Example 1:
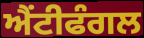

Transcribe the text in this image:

ਐਂਟੀਫੰਗਲ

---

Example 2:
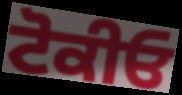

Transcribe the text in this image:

ਟੋਕੀਓ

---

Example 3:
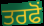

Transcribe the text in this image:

ਤਰਫੋਂ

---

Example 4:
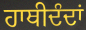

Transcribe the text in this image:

ਹਾਥੀਦੰਦਾਂ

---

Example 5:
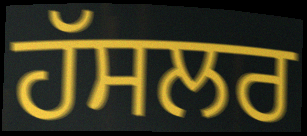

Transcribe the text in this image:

ਹੱਸਲਰ